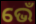
ଭେଁ